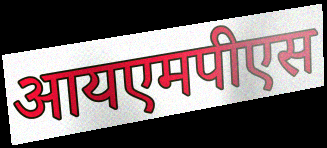
आयएमपीएस